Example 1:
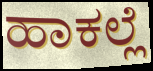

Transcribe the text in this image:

ಹಾಕಲ್ಲೆ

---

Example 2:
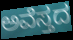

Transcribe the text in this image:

ಅವೆಸ್ತದ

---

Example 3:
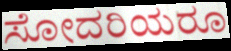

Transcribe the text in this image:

ಸೋದರಿಯರೂ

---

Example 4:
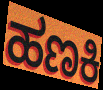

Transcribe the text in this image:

ಹಣಕಿ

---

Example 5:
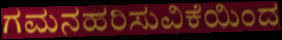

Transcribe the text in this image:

ಗಮನಹರಿಸುವಿಕೆಯಿಂದ